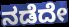
ನಡೆದೇ